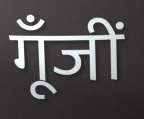
गूँजीं